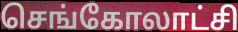
செங்கோலாட்சி